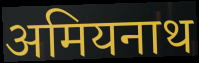
अमियनाथ